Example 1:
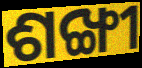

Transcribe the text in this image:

ଶଙ୍ଖୀ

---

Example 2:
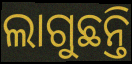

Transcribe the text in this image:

ଲାଗୁଛନ୍ତି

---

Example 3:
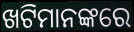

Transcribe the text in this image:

ଖଟିମାନଙ୍କରେ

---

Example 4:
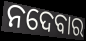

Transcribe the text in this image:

ନଦେବାର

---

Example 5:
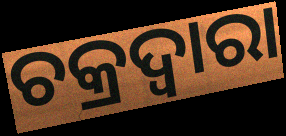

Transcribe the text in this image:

ଚକ୍ରଦ୍ୱାରା